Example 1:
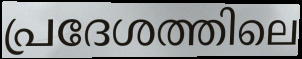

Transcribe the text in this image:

പ്രദേശത്തിലെ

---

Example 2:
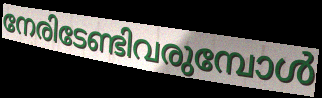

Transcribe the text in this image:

നേരിടേണ്ടിവരുമ്പോൾ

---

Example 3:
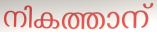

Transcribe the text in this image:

നികത്താന്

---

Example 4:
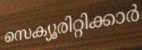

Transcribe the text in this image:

സെക്യൂരിറ്റിക്കാർ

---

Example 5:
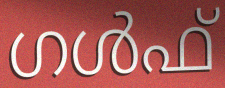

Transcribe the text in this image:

ഗൾഫ്